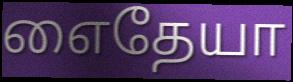
எைதேயா